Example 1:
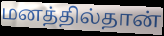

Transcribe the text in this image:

மனத்தில்தான்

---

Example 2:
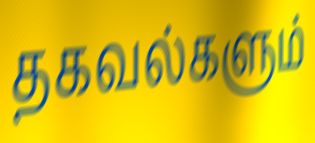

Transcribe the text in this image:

தகவல்களும்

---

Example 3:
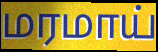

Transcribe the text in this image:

மரமாய்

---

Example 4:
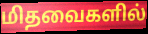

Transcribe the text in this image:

மிதவைகளில்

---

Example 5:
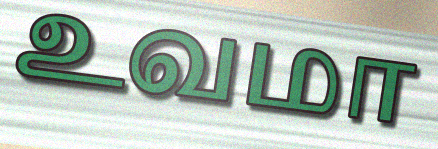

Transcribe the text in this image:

உவமா